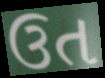
ઉત